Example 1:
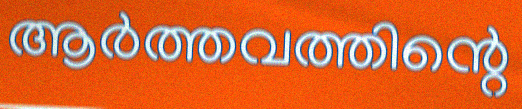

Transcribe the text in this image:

ആർത്തവത്തിന്റെ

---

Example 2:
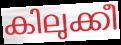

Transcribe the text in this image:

കിലുക്കീ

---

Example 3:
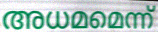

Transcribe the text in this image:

അധമമെന്ന്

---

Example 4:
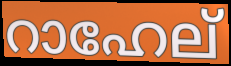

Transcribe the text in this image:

റാഹേല്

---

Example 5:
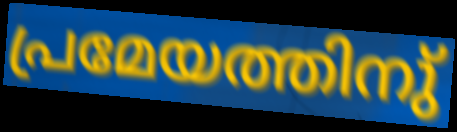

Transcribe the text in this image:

പ്രമേയത്തിനു്